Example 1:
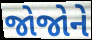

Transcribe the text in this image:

જોજોને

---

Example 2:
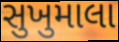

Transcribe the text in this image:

સુખુમાલા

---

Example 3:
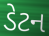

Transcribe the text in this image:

ડેટન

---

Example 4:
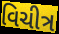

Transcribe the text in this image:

વિચીત્ર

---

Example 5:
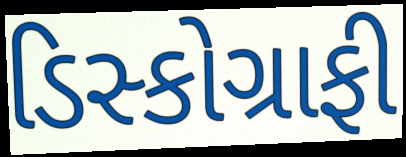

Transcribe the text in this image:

ડિસ્કોગ્રાફી